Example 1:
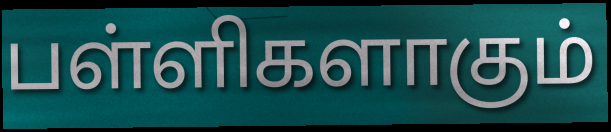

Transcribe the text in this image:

பள்ளிகளாகும்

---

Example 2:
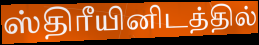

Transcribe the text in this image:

ஸ்திரீயினிடத்தில்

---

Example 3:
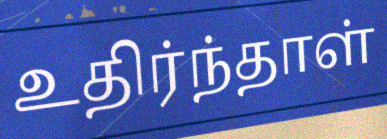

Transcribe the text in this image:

உதிர்ந்தாள்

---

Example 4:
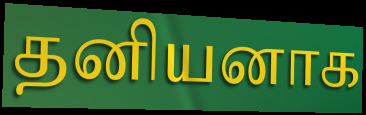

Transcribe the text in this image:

தனியனாக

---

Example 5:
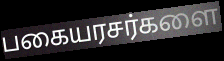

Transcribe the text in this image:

பகையரசர்களை